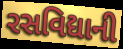
રસવિદ્યાની